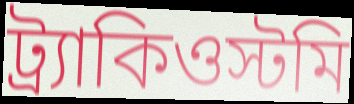
ট্র্যাকিওস্টমি